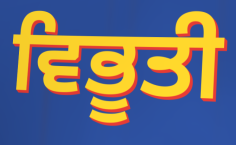
ਵਿਭੂਤੀ